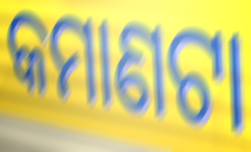
କମାଣଟା